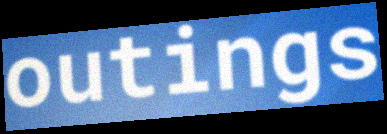
outings